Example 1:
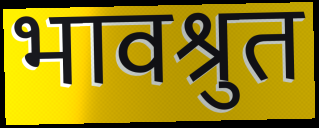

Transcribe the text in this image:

भावश्रुत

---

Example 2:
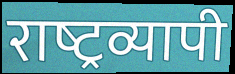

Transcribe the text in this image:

राष्ट्रव्यापी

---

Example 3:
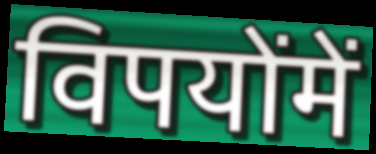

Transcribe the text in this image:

विपयोंमें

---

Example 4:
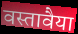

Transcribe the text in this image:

वस्तावैया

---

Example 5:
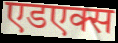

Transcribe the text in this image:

एडएक्स